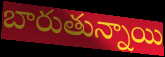
బారుతున్నాయి